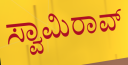
ಸ್ವಾಮಿರಾವ್